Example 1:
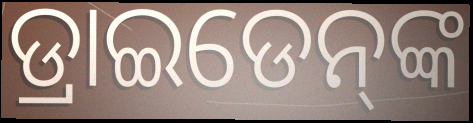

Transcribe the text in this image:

ଡ୍ରାଇଡେନ୍‌ଙ୍କ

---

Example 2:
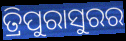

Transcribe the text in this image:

ତ୍ରିପୁରାସୁରର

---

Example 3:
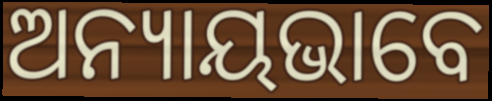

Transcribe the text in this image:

ଅନ୍ୟାୟଭାବେ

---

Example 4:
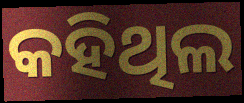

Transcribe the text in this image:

କହିଥିଲ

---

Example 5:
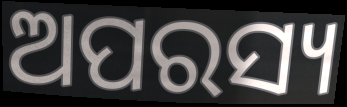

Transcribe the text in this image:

ଅପରସ୍ୟ